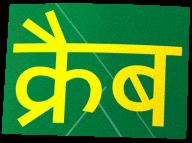
क्रैब